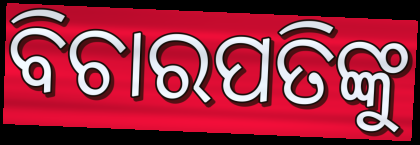
ବିଚାରପତିଙ୍କୁ